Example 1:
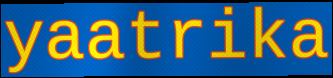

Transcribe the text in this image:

yaatrika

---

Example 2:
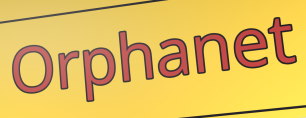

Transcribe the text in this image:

Orphanet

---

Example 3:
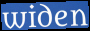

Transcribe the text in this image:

widen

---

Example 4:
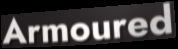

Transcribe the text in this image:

Armoured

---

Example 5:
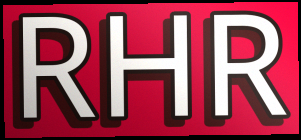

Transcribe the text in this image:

RHR